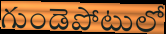
గుండెపోటులో